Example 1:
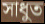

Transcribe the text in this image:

সাধুত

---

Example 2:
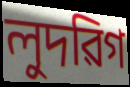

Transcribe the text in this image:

লুদৱিগ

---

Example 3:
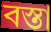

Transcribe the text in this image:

বস্তা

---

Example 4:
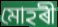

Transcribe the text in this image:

মোহৰী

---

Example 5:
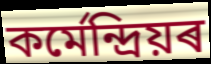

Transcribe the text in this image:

কৰ্মেন্দ্ৰিয়ৰ